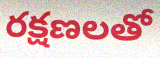
రక్షణలతో